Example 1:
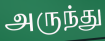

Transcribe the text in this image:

அருந்து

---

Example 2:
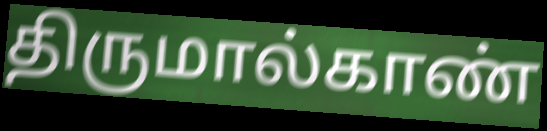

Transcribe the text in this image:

திருமால்காண்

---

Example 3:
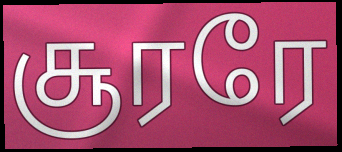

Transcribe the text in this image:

சூரரே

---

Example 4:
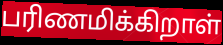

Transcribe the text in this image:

பரிணமிக்கிறாள்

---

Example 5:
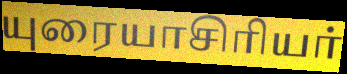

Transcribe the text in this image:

யுரையாசிரியர்